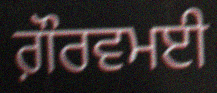
ਗ਼ੌਰਵਮਈ